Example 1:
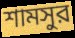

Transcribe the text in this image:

শামসুর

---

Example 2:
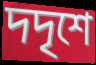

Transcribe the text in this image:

দদৃশে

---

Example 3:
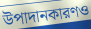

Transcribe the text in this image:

উপাদানকারণও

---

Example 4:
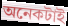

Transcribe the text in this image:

অনেকটাই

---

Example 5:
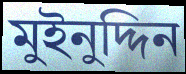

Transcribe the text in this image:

মুইনুদ্দিন